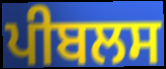
ਪੀਬਲਸ